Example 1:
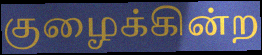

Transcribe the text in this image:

குழைக்கின்ற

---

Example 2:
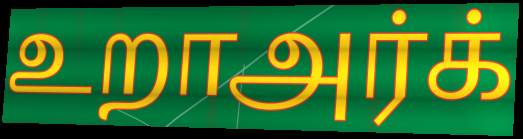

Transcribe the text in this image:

உறாஅர்க்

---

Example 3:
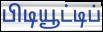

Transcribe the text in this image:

பிடியூட்டிப்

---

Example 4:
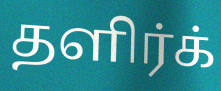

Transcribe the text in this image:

தளிர்க்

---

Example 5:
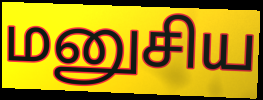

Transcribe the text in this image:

மனுசிய